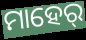
ମାହେର୍